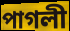
পাগলী